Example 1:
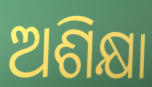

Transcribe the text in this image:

ଅଶିକ୍ଷା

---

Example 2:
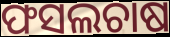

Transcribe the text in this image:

ଫସଲଚାଷ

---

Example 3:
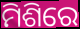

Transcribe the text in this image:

ମିଶିରେ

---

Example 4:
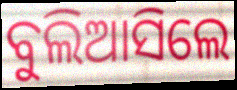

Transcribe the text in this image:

ବୁଲିଆସିଲେ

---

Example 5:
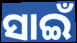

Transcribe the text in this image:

ସାଇଁ